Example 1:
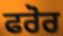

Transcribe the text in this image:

ਫਰੋਰ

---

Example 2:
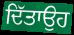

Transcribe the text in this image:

ਦਿੱਤਾਉਹ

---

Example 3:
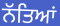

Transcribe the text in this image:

ਨੱਤਿਆਂ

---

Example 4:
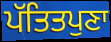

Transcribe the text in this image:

ਪੱਤਿਤਪੁਣਾ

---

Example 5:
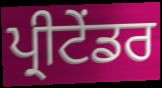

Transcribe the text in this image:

ਪ੍ਰੀਟੇਂਡਰ